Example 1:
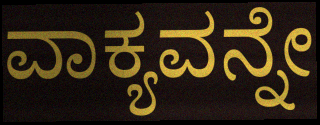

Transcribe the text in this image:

ವಾಕ್ಯವನ್ನೇ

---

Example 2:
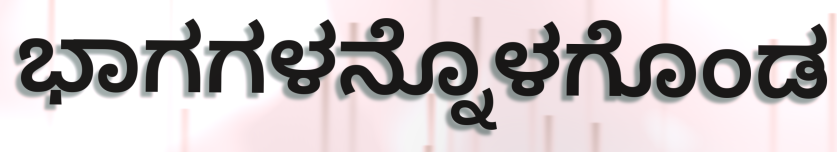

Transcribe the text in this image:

ಭಾಗಗಳನ್ನೊಳಗೊಂಡ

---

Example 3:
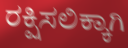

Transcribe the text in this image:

ರಕ್ಷಿಸಲಿಕ್ಕಾಗಿ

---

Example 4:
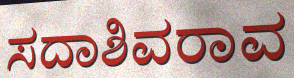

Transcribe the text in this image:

ಸದಾಶಿವರಾವ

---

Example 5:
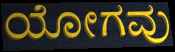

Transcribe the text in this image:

ಯೋಗವು